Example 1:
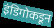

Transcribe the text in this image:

इंडिगोकडून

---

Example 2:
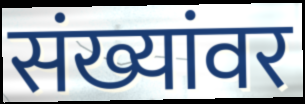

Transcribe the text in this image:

संख्यांवर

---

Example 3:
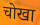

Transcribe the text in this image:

चोखा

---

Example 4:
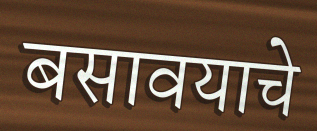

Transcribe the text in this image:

बसावयाचे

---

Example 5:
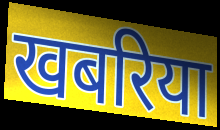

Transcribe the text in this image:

खबरिया